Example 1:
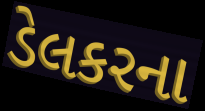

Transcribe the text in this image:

ડેલકરના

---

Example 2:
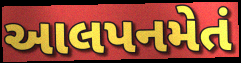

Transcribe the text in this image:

આલપનમેતં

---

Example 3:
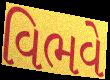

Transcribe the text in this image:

વિભવે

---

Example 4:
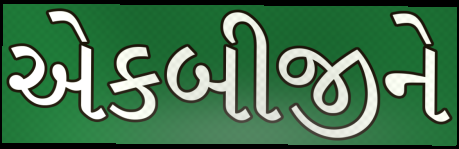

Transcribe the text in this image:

એકબીજીને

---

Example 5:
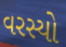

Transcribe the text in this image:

વરસ્યો